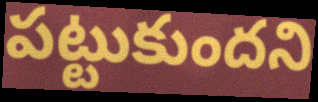
పట్టుకుందని